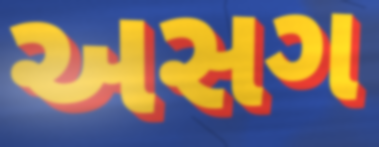
અસગ